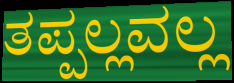
ತಪ್ಪಲ್ಲವಲ್ಲ